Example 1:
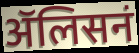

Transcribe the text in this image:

ॲलिसनं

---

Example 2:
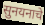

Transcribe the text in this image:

सुनयनाचे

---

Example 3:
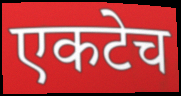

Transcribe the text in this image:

एकटेच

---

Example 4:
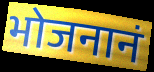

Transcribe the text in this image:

भोजनानं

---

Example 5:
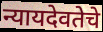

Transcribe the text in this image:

न्यायदेवतेचे